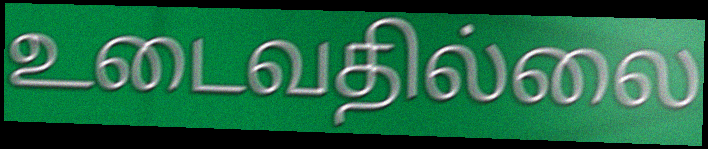
உடைவதில்லை